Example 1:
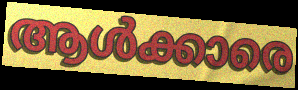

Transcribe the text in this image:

ആൾക്കാരെ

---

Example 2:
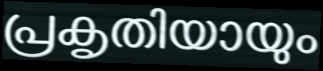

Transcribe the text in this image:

പ്രകൃതിയായും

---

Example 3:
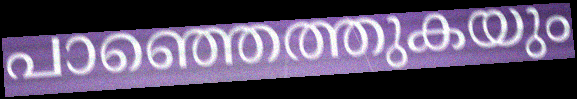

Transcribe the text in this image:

പാഞ്ഞെത്തുകയും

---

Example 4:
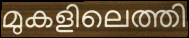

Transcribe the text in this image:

മുകളിലെത്തി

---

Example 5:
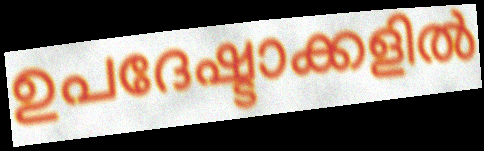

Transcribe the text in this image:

ഉപദേഷ്ടാക്കളിൽ